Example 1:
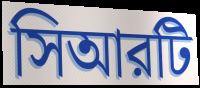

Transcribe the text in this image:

সিআরটি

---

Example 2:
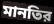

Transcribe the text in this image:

মানতির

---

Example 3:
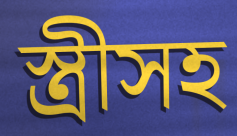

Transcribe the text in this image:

স্ত্রীসহ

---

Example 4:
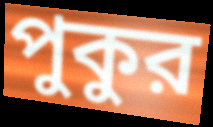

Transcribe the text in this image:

পুকুর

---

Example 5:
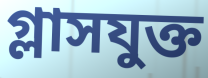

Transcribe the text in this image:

গ্লাসযুক্ত